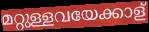
മറ്റുള്ളവയേക്കാള്